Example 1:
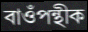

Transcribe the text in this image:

বাওঁপন্থীক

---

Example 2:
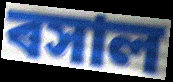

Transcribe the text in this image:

ৰসাল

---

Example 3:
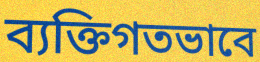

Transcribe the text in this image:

ব্যক্তিগতভাবে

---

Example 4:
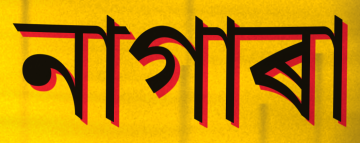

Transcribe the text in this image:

নাগাৰা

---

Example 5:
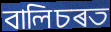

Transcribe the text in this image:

বালিচৰত